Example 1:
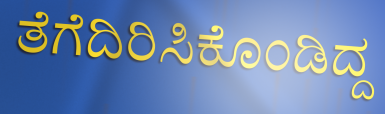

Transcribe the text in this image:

ತೆಗೆದಿರಿಸಿಕೊಂಡಿದ್ದ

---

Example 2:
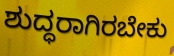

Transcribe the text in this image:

ಶುದ್ಧರಾಗಿರಬೇಕು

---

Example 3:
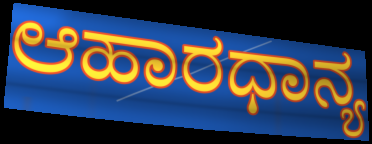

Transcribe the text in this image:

ಆಹಾರಧಾನ್ಯ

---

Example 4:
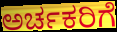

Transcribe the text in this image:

ಅರ್ಚಕರಿಗೆ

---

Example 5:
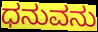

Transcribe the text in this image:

ಧನುವನು